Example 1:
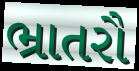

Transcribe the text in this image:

ભ્રાતરૌ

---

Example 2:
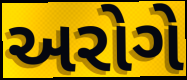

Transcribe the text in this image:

અરોગે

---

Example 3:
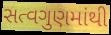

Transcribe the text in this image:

સત્વગુણમાંથી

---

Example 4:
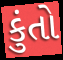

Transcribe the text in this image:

કુંતો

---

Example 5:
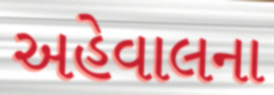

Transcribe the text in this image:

અહેવાલના